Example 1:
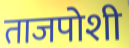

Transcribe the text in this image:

ताजपोशी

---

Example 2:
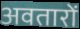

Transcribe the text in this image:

अवतारों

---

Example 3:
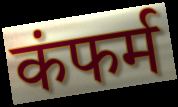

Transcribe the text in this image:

कंफर्म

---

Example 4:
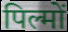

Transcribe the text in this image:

पिल्मों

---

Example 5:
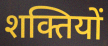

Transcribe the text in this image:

शक्तियों